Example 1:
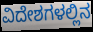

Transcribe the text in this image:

ವಿದೇಶಗಳಲ್ಲಿನ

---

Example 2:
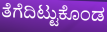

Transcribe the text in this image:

ತೆಗೆದಿಟ್ಟುಕೊಂಡ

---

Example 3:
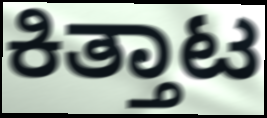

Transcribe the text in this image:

ಕಿತ್ತಾಟ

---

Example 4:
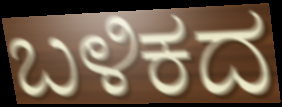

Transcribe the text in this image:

ಬಳಿಕದ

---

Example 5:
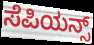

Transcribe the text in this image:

ಸೆಪಿಯನ್ಸ್